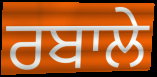
ਰਬਾਲੇ